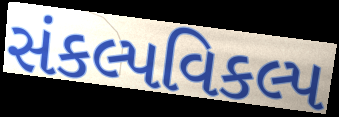
સંકલ્પવિકલ્પ